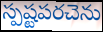
స్పష్టపరచెను